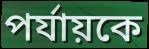
পর্যায়কে